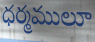
ధర్మములూ